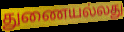
துணையல்லது